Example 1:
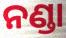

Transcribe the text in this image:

ନଣ୍ଡା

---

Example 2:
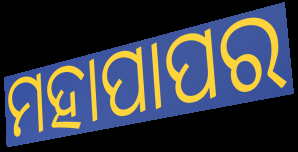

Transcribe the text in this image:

ମହାପାପର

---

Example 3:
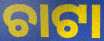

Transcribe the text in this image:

ଚାଟା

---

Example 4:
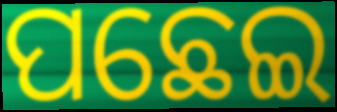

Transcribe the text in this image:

ପଛେଇ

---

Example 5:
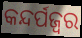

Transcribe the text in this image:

କନ୍ଦର୍ପଜ୍ବର